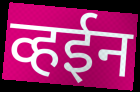
व्हईन